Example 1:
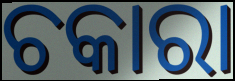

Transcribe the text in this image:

ଚକାରା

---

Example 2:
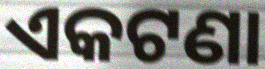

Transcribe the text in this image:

ଏକଟଣା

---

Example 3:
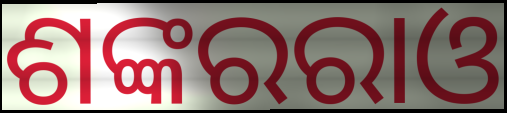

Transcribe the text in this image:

ଶଙ୍କରରାଓ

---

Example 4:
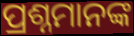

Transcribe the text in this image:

ପ୍ରଶ୍ନମାନଙ୍କ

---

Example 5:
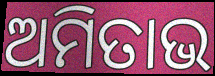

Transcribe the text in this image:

ଅମିତାଭ